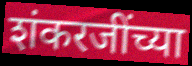
शंकरजींच्या